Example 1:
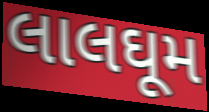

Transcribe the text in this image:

લાલઘૂમ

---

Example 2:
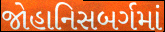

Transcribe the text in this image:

જોહાનિસબર્ગમાં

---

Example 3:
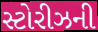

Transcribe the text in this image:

સ્ટોરીઝની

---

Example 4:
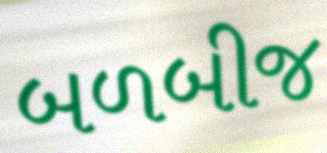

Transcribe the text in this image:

બળબીજ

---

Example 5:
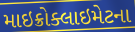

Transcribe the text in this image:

માઇક્રોક્લાઇમેટના